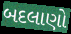
બદલાણો